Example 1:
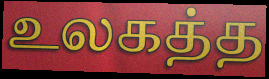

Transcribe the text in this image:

உலகத்த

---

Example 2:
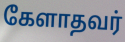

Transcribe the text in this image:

கேளாதவர்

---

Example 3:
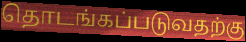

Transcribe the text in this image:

தொடங்கப்படுவதற்கு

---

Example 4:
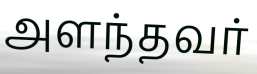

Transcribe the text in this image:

அளந்தவர்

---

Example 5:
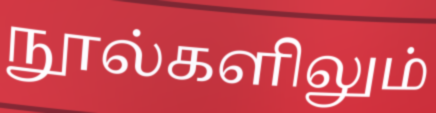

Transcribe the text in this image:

நூல்களிலும்